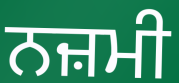
ਨਜ਼ਮੀ